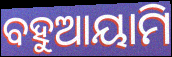
ବହୁଆୟାମି